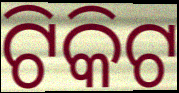
ଟିକିଟ